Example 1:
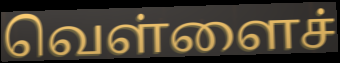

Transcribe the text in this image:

வெள்ளைச்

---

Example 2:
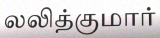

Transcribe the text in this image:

லலித்குமார்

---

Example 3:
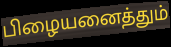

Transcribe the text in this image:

பிழையனைத்தும்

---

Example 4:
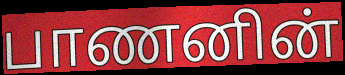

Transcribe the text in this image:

பாணனின்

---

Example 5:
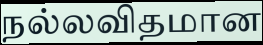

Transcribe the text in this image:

நல்லவிதமான